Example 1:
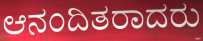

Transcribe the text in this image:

ಆನಂದಿತರಾದರು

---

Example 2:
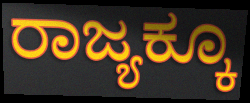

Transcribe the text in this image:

ರಾಜ್ಯಕ್ಕೂ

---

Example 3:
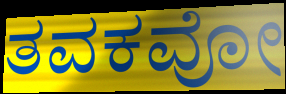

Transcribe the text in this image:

ತವಕವೋ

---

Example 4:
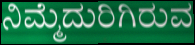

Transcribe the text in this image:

ನಿಮ್ಮೆದುರಿಗಿರುವ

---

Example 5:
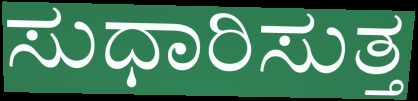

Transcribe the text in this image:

ಸುಧಾರಿಸುತ್ತ